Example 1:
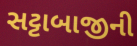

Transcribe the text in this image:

સટ્ટાબાજીની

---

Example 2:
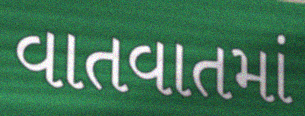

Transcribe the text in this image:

વાતવાતમાં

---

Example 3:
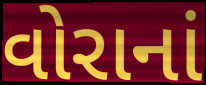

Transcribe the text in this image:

વોરાનાં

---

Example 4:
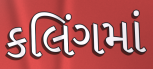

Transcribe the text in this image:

કલિંગમાં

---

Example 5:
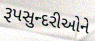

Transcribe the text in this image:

રૂપસુન્દરીઓને